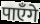
पाएँगे